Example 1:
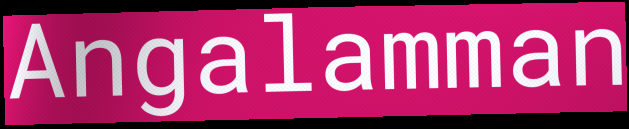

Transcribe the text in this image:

Angalamman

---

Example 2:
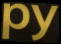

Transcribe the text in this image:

py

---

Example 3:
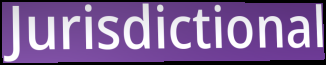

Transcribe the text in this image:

Jurisdictional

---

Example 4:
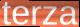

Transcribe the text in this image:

terza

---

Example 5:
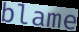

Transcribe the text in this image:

blame